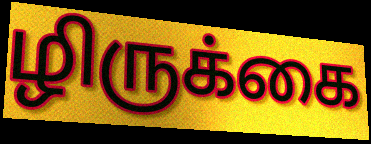
ழிருக்கை